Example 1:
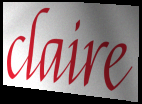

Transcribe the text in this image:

claire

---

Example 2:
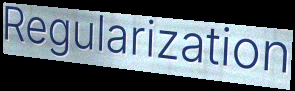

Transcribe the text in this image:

Regularization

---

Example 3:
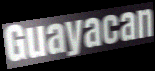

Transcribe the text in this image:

Guayacan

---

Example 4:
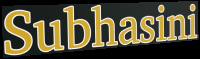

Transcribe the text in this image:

Subhasini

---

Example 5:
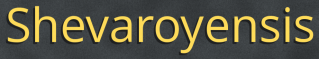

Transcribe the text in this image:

Shevaroyensis